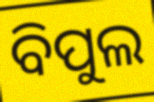
ବିପୁଲ